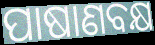
ପାଷାଣବକ୍ଷ